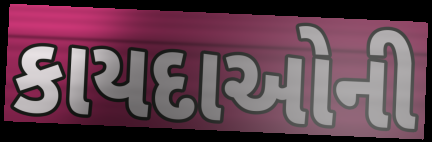
કાયદાઓની